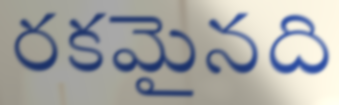
రకమైనది